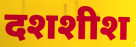
दशशीश